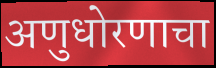
अणुधोरणाचा